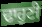
ਢਾਹੁਣੀ